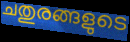
ചതുരങ്ങളുടെ